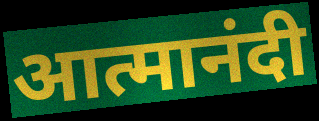
आत्मानंदी